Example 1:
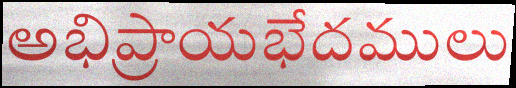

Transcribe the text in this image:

అభిప్రాయభేదములు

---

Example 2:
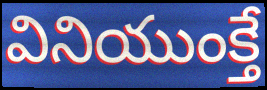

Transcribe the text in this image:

వినియుంక్తే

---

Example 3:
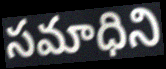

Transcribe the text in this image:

సమాధిని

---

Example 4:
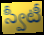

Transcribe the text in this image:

స్వీటీ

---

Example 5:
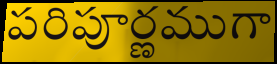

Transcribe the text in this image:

పరిపూర్ణముగా